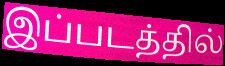
இப்படத்தில்